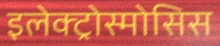
इलेक्ट्रोस्मोसिस